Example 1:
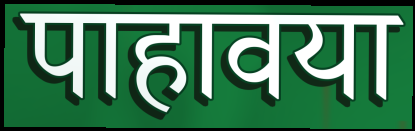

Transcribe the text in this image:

पाहावया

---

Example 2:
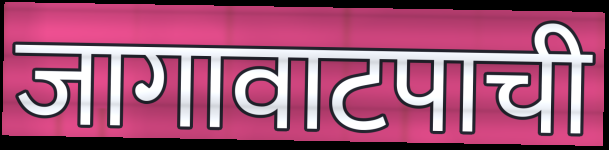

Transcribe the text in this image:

जागावाटपाची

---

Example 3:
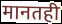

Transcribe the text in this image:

मानतही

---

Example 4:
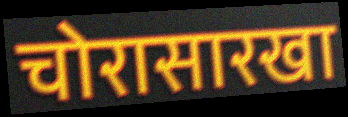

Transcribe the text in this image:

चोरासारखा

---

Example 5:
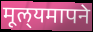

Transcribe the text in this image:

मूल्यमापने